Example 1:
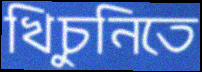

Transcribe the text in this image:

খিচুনিতে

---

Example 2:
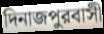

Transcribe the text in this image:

দিনাজপুরবাসী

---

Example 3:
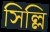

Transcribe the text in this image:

সিল্লি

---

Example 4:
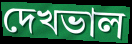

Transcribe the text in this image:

দেখভাল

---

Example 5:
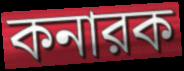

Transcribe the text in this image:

কনারক